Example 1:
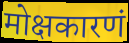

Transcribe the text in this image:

मोक्षकारणं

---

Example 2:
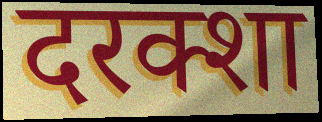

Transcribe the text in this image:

दरक्शा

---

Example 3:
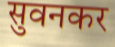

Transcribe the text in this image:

सुवनकर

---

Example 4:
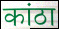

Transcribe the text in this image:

कांठा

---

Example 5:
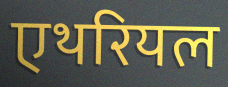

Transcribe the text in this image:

एथरियल